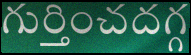
గుర్తించదగ్గ